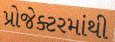
પ્રોજેક્ટરમાંથી